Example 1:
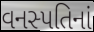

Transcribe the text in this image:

વનસ્પતિનાં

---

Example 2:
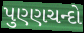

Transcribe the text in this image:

પુણ્ણચન્દો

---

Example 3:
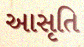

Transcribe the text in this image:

આસૃતિ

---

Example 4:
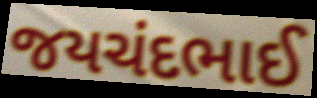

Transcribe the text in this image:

જયચંદભાઈ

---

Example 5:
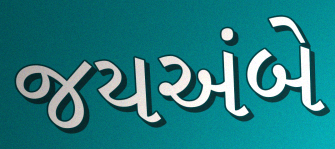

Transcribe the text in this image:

જયઅંબે